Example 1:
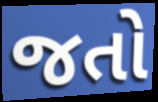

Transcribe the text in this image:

જતો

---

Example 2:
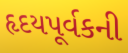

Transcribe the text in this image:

હૃદયપૂર્વકની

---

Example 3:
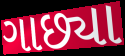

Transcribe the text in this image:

ગાછ્યા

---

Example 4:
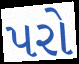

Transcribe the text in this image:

પરો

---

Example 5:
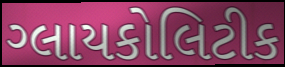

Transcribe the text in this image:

ગ્લાયકોલિટીક